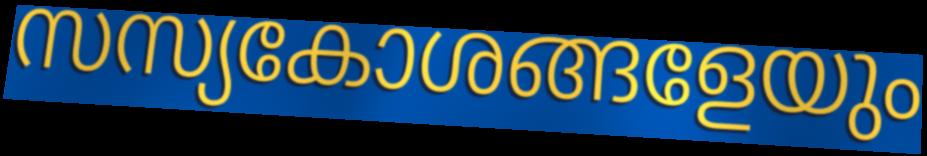
സസ്യകോശങ്ങളേയും